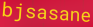
bjsasane